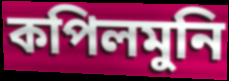
কপিলমুনি